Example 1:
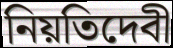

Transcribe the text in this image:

নিয়তিদেবী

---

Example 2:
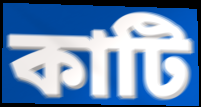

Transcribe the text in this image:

কাটি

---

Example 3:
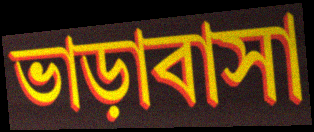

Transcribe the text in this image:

ভাড়াবাসা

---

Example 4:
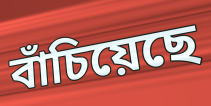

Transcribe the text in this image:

বাঁচিয়েছে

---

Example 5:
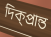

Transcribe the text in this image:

দিক্‌প্রান্ত